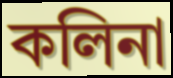
কলিনা